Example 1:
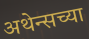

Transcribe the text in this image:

अथेन्सच्या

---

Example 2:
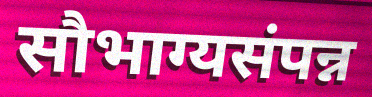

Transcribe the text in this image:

सौभाग्यसंपन्न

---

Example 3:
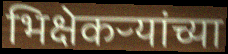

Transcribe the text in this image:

भिक्षेकऱ्यांच्या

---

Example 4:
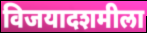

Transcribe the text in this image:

विजयादशमीला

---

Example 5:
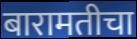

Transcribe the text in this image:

बारामतीचा